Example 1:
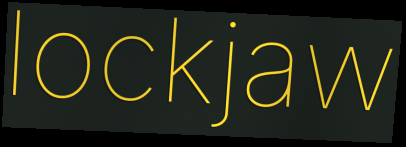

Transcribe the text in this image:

lockjaw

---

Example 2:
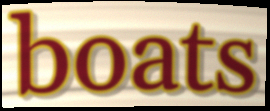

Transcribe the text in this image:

boats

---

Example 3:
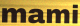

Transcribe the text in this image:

mami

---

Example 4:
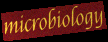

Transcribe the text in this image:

microbiology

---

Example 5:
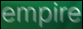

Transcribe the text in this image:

empire